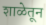
शाळेतून